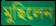
মুছিলেন